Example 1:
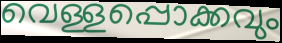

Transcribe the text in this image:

വെള്ളപ്പൊക്കവും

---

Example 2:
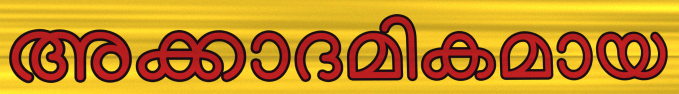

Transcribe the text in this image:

അക്കാദമികമായ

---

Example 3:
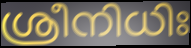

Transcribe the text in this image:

ശ്രീനിധിഃ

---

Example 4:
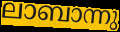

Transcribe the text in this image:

ലാബാന്നു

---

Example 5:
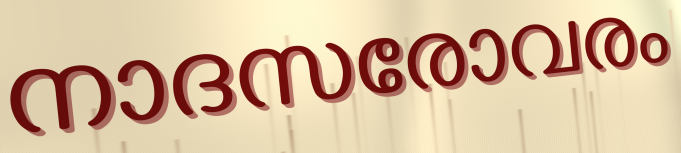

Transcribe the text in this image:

നാദസരോവരം